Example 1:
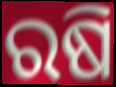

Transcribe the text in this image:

ରଷି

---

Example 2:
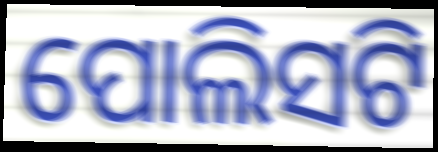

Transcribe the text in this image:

ପୋଲିସଟି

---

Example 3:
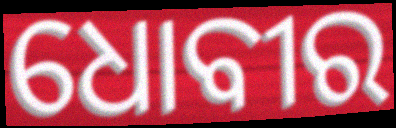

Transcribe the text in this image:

ଧୋବୀର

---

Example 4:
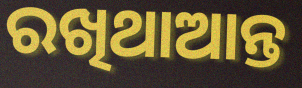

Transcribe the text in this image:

ରଖିଥାଆନ୍ତ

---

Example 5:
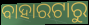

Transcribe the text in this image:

ବାହାରଟାରୁ